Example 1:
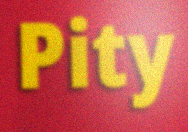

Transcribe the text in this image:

Pity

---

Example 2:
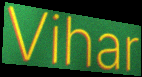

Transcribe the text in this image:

Vihar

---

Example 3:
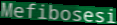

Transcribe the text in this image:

Mefibosesi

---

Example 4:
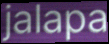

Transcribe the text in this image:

jalapa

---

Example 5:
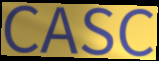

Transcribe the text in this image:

CASC